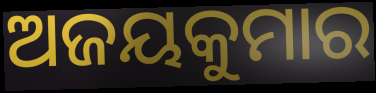
ଅଜୟକୁମାର